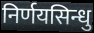
निर्णयसिन्धु